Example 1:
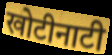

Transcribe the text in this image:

खोटीनाटी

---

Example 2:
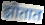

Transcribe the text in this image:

झोतात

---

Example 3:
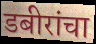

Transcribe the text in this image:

डबीरांचा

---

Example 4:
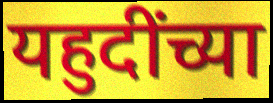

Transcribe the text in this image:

यहुदींच्या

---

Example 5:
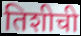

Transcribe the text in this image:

तिशीची